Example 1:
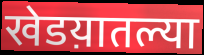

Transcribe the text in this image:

खेडय़ातल्या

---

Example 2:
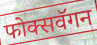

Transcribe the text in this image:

फोक्सवॅगन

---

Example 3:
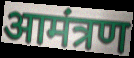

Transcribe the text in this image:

आमंत्रण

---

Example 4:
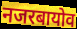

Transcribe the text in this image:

नजरबायोव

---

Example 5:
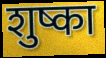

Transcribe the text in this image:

शुष्का